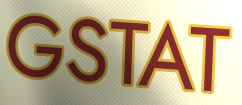
GSTAT